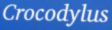
Crocodylus